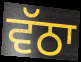
ਵੱਠਾ